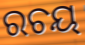
ରଚୟ